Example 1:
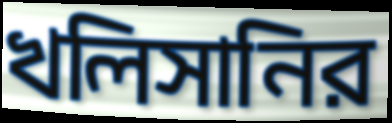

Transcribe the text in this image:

খলিসানির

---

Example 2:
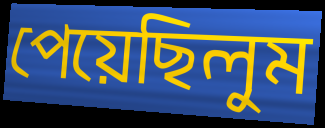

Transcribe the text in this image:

পেয়েছিলুম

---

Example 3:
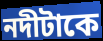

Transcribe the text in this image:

নদীটাকে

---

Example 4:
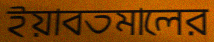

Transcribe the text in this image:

ইয়াবতমালের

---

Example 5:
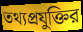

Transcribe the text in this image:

তথ্যপ্রযুক্তির